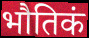
भौतिकं